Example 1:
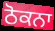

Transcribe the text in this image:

ਠੋਕਨਾ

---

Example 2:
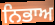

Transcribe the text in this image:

ਨਿਭਾਅ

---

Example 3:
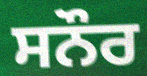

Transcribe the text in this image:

ਸਨੌਰ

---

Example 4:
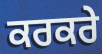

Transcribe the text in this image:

ਕਰਕਰੇ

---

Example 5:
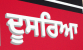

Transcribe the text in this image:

ਦੂਸਰਿਆ